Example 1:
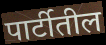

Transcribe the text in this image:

पार्टीतील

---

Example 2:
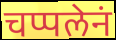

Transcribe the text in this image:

चप्पलेनं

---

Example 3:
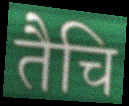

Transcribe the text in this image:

तैचि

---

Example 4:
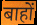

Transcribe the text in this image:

बाहों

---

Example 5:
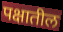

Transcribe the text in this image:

पक्षातील